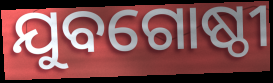
ଯୁବଗୋଷ୍ଠୀ